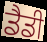
ਡੈਡੀ